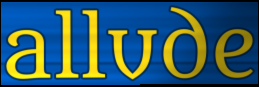
allude